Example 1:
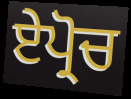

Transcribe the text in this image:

ਏਪ੍ਰੋਚ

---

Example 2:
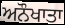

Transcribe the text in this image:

ਅਨੌਖਾਤਾ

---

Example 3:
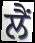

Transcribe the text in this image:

ਲੈਂ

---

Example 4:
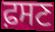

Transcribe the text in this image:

ਫ਼ਸਣ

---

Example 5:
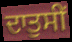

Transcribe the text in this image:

ਦਾਤੁਸੀਂ